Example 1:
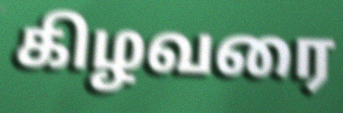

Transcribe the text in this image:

கிழவரை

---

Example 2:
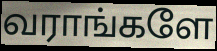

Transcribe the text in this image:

வராங்களே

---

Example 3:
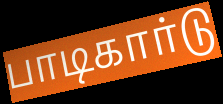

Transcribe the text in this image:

பாடிகார்டு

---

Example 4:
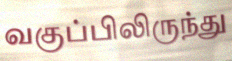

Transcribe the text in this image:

வகுப்பிலிருந்து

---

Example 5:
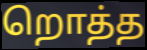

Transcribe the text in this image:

றொத்த